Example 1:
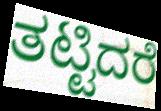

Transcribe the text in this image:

ತಟ್ಟಿದರೆ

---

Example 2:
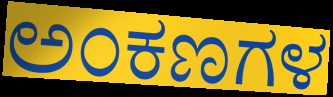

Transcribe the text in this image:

ಅಂಕಣಗಳ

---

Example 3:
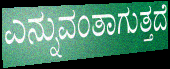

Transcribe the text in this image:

ಎನ್ನುವಂತಾಗುತ್ತದೆ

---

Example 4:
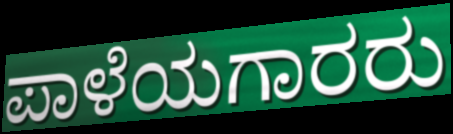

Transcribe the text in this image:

ಪಾಳೆಯಗಾರರು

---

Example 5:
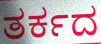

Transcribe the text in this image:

ತರ್ಕದ